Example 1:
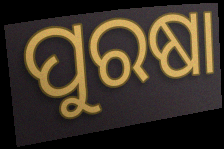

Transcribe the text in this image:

ପୁରଷା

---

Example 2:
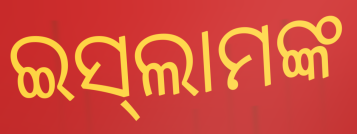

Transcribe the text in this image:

ଇସ୍‌ଲାମଙ୍କ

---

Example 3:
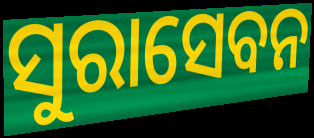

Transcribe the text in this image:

ସୁରାସେବନ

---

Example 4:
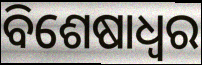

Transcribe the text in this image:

ବିଶେଷାଧ୍ଵର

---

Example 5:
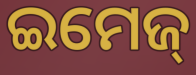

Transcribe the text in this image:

ଇମେଜ୍